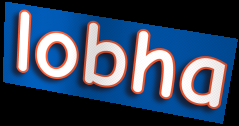
lobha